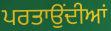
ਪਰਤਾਉਂਦੀਆਂ